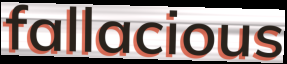
fallacious